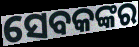
ସେବକଙ୍କର